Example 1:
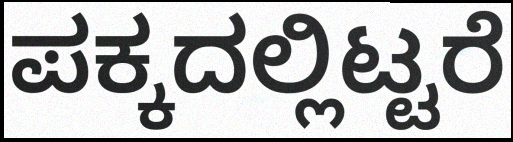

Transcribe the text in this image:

ಪಕ್ಕದಲ್ಲಿಟ್ಟರೆ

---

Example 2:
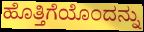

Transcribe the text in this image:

ಹೊತ್ತಿಗೆಯೊಂದನ್ನು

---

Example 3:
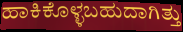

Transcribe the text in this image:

ಹಾಕಿಕೊಳ್ಳಬಹುದಾಗಿತ್ತು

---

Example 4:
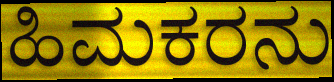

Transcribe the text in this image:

ಹಿಮಕರನು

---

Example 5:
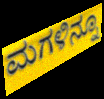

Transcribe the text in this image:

ಮಗಳಿನ್ನೂ